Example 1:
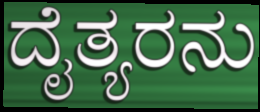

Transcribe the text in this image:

ದೈತ್ಯರನು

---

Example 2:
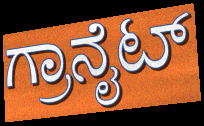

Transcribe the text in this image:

ಗ್ರಾನೈಟ್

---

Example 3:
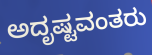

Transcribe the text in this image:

ಅದೃಷ್ಟವಂತರು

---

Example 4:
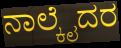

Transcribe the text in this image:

ನಾಲ್ಕೈದರ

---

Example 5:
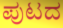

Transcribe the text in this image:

ಪುಟದ